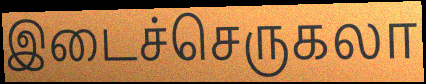
இடைச்செருகலா